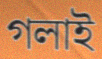
গলাই